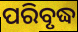
ପରିବୃଦ୍ଧ